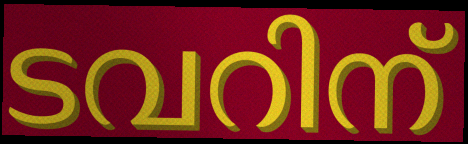
ടവറിന്